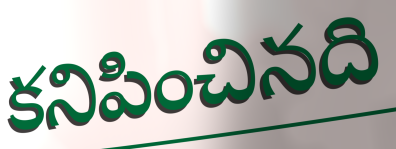
కనిపించినది